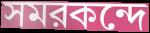
সমরকন্দে